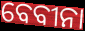
ବେବୀନା